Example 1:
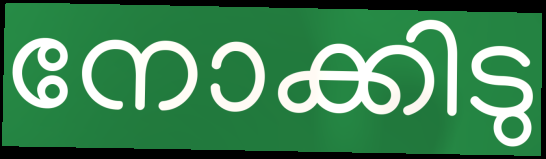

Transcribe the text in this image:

നോക്കിടു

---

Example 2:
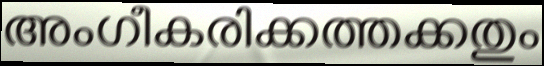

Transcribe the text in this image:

അംഗീകരിക്കത്തക്കതും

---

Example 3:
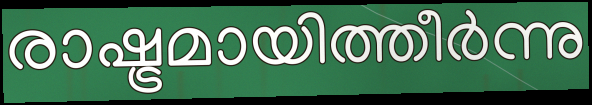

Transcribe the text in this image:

രാഷ്ട്രമായിത്തീർന്നു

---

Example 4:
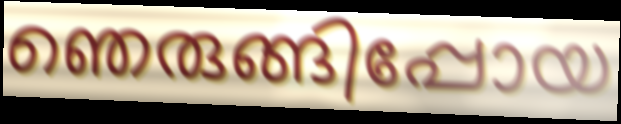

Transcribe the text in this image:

ഞെരുങ്ങിപ്പോയ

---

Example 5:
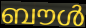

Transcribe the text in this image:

ബൗൾ